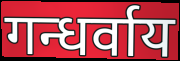
गन्धर्वाय